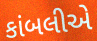
કાંબલીએ